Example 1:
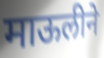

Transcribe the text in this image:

माऊलीने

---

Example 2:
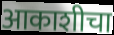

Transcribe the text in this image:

आकाशीचा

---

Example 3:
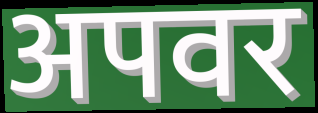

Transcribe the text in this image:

अपवर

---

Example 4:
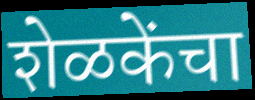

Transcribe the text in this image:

शेळकेंचा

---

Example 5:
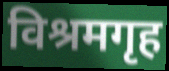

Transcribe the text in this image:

विश्रमगृह